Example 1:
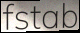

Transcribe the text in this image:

fstab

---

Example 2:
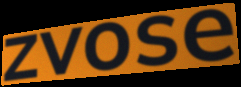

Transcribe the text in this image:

zvose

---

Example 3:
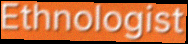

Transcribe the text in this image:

Ethnologist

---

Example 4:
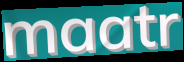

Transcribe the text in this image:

maatr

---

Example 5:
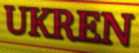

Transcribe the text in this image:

UKREN